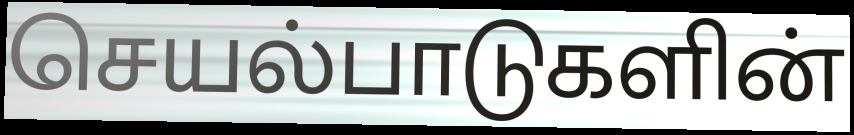
செயல்பாடுகளின்